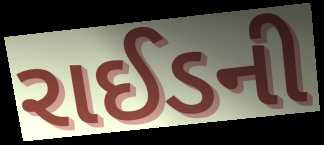
રાઈડની